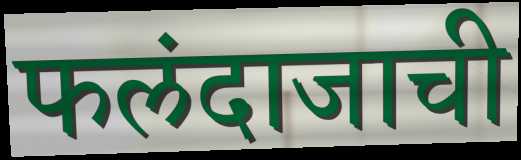
फलंदाजाची